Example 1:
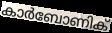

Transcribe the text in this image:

കാർബോണിക്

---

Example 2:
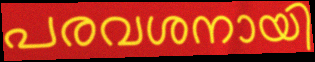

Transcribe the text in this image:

പരവശനായി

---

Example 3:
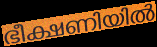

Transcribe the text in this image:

ഭീക്ഷണിയിൽ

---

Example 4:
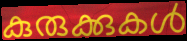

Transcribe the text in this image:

കുരുക്കുകൾ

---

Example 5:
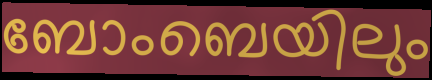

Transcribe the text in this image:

ബോംബെയിലും